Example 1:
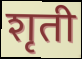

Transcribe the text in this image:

शृती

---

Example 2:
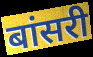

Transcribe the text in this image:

बांसरी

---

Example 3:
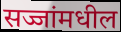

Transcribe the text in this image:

सज्जांमधील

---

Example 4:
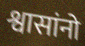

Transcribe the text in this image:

श्वासांनो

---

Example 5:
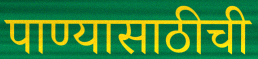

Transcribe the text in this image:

पाण्यासाठीची